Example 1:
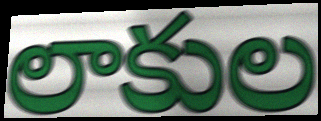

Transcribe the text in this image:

లాకుల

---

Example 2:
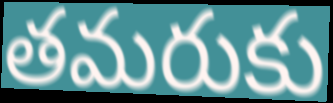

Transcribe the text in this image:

తమరుకు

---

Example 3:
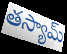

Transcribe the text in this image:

తస్యామ్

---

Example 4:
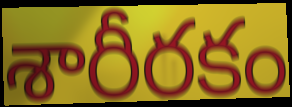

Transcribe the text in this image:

శారీరకం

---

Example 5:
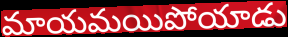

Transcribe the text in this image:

మాయమయిపోయాడు